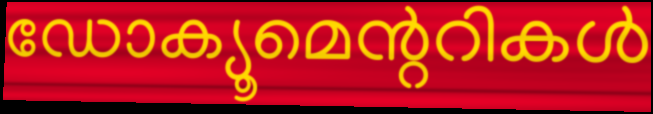
ഡോക്യൂമെന്ററികൾ